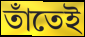
তাঁতেই